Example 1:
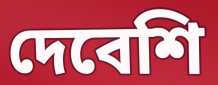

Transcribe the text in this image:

দেবেশি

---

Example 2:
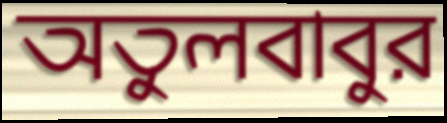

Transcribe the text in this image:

অতুলবাবুর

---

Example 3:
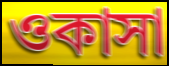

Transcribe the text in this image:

ওকাসা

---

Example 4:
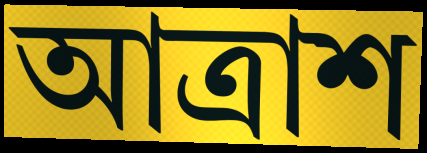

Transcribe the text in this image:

আত্রাশ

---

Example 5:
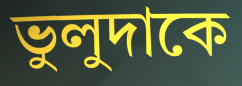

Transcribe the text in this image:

ভুলুদাকে